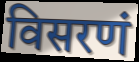
विसरणं